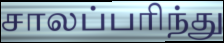
சாலப்பரிந்து